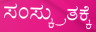
ಸಂಸ್ಕ್ರುತಕ್ಕೆ